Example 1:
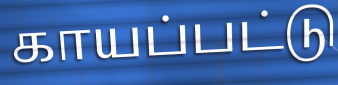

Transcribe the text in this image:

காயப்பட்டு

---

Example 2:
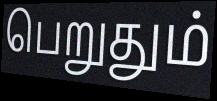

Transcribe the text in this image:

பெறுதும்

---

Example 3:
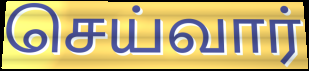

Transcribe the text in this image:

செய்வார்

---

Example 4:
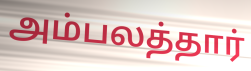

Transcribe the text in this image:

அம்பலத்தார்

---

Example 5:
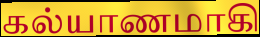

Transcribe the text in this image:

கல்யாணமாகி